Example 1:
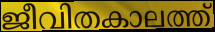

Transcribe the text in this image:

ജീവിതകാലത്ത്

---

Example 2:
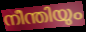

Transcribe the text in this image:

നീന്തിയും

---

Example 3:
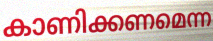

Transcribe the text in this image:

കാണിക്കണമെന്ന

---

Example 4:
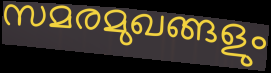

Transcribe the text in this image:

സമരമുഖങ്ങളും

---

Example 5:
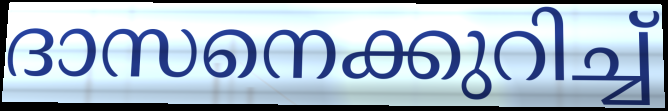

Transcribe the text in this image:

ദാസനെക്കുറിച്ച്